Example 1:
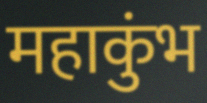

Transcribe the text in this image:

महाकुंभ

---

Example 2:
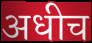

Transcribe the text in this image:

अधीच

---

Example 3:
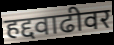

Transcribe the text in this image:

हद्दवाढीवर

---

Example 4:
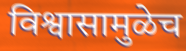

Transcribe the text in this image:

विश्वासामुळेच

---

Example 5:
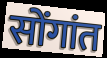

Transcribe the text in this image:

सोंगांत